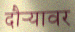
दौऱ्यावर